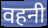
वहनी